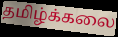
தமிழ்க்கலை